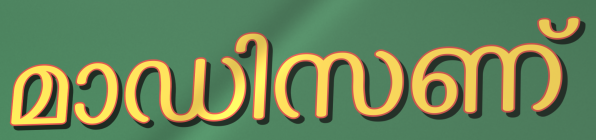
മാഡിസണ്